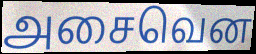
அசைவென